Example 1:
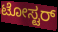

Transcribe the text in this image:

ಟೋಸ್ಟರ್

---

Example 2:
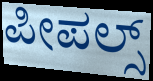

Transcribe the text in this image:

ಪೀಪಲ್ಸ್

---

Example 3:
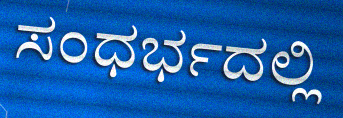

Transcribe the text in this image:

ಸಂಧರ್ಭದಲ್ಲಿ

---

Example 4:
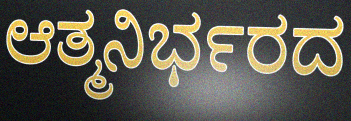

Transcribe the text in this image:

ಆತ್ಮನಿರ್ಭರದ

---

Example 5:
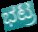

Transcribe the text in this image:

ಭಟ್ರ